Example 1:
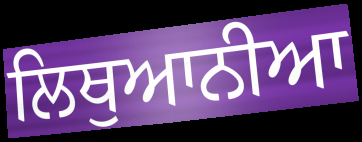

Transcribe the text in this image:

ਲਿਥੁਆਨੀਆ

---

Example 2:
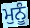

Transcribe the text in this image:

ਮੁਨੂੰ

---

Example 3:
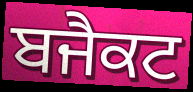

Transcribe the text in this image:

ਬਜੈਕਟ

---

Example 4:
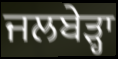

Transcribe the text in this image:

ਜਲਬੇੜ੍ਹਾ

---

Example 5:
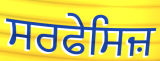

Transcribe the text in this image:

ਸਰਫੇਸਿਜ਼